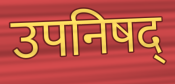
उपनिषद्